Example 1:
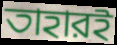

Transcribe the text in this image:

তাহারই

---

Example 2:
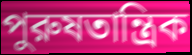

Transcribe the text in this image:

পুরুষতান্ত্রিক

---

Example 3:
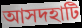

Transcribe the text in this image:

আসদহাটি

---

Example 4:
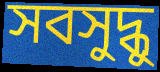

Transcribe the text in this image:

সবসুদ্ধু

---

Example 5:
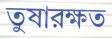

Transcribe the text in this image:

তুষারক্ষত